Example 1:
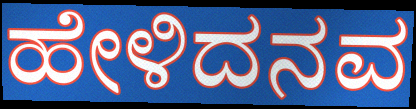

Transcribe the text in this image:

ಹೇಳಿದನವ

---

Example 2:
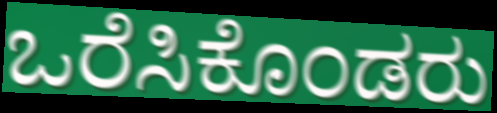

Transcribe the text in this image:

ಒರೆಸಿಕೊಂಡರು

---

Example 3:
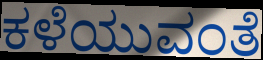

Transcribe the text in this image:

ಕಳೆಯುವಂತೆ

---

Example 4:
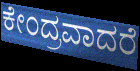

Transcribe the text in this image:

ಕೇಂದ್ರವಾದರೆ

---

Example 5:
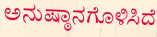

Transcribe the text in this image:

ಅನುಷ್ಠಾನಗೊಳಿಸಿದೆ